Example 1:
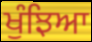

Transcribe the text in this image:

ਖੁੰਝਿਆ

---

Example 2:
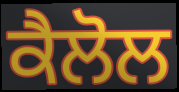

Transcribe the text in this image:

ਕੈਲੋਲ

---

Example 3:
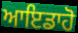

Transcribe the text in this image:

ਆਇਡਾਹੋ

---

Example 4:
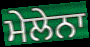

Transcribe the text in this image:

ਮੇਲੇਨਾ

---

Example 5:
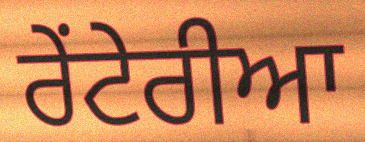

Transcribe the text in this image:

ਰੇਂਟੇਰੀਆ